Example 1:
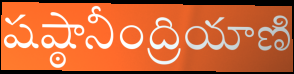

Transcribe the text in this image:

షష్ఠానీంద్రియాణి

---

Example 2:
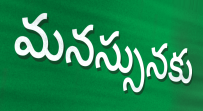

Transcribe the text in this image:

మనస్సునకు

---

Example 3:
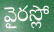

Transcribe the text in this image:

వైరస్లో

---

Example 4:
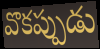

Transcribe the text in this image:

వొకప్పుడు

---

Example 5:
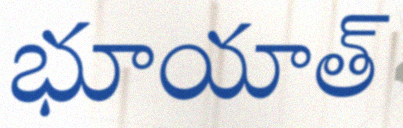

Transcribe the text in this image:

భూయాత్